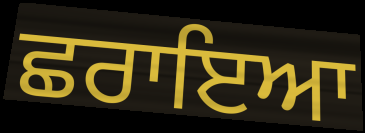
ਛਰਾਇਆ